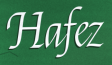
Hafez